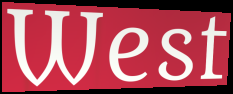
West